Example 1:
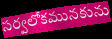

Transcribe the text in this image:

సర్వలోకమునకును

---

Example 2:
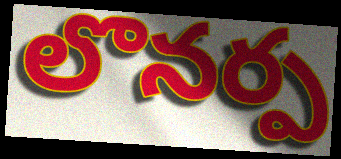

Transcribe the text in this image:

లొనర్ప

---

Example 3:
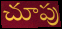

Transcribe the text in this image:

చూపు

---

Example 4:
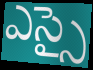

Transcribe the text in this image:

ఎస్సై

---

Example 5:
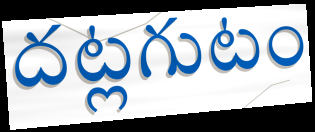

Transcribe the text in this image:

దట్లగుటం